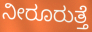
ನೀರೂರುತ್ತೆ